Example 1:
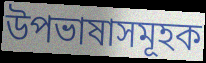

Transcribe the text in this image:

উপভাষাসমূহক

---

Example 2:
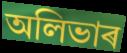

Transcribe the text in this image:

অলিভাৰ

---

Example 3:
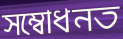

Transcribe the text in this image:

সম্বোধনত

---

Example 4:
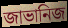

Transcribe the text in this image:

জাভানিজ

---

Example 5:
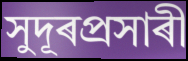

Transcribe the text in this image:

সুদূৰপ্ৰসাৰী